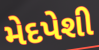
મેદપેશી